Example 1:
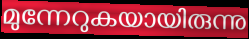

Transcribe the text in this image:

മുന്നേറുകയായിരുന്നു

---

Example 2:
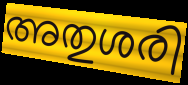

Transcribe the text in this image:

അതുശരി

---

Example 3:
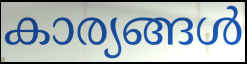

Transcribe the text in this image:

കാര്യങ്ങൾ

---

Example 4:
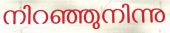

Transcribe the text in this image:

നിറഞ്ഞുനിന്നു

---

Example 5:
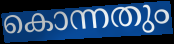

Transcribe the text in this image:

കൊന്നതും